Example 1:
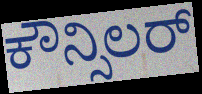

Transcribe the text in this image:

ಕೌನ್ಸಿಲರ್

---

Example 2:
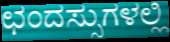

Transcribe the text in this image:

ಛಂದಸ್ಸುಗಳಲ್ಲಿ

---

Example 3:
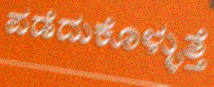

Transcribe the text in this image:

ಪಡೆದುಕೊಳ್ಳುತ್ತೆ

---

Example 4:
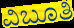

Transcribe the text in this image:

ವಿಬೂತಿ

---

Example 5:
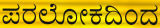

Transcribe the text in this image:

ಪರಲೋಕದಿಂದ